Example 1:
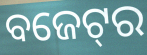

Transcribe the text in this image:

ବଜେଟ୍‌ର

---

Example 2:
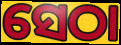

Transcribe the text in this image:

ସେଠା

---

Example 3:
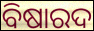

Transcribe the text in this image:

ବିଷାରଦ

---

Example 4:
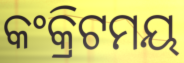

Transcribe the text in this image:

କଂକ୍ରିଟମୟ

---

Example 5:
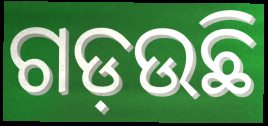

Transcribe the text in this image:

ଗଡ଼ଉଛି